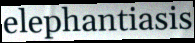
elephantiasis